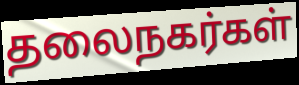
தலைநகர்கள்